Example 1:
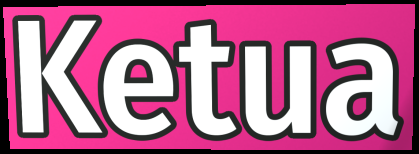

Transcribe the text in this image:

Ketua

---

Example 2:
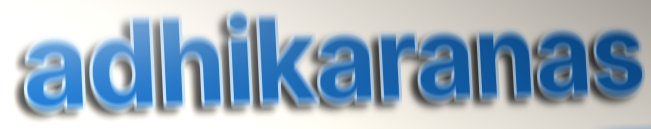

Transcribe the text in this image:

adhikaranas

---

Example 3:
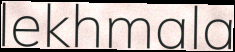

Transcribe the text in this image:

lekhmala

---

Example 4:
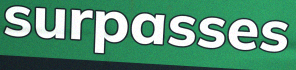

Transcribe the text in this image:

surpasses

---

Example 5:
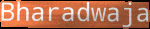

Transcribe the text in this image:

Bharadwaja